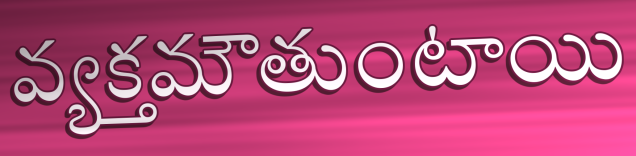
వ్యక్తమౌతుంటాయి